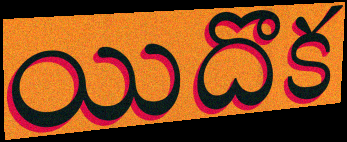
యిదొక